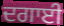
ਦਗਾਈ